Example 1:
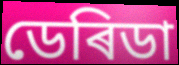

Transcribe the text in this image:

ডেৰিডা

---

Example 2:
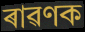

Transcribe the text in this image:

ৰাৱণক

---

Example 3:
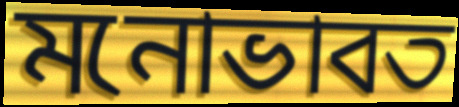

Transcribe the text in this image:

মনোভাবত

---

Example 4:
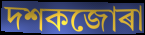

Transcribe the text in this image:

দশকজোৰা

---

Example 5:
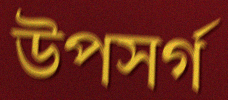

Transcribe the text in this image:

উপসৰ্গ